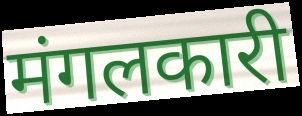
मंगलकारी